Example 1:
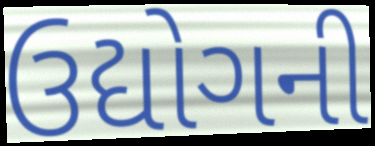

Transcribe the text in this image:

ઉદ્યોગની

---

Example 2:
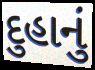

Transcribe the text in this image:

દુહાનું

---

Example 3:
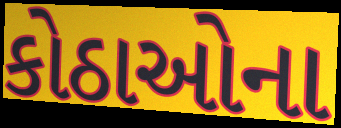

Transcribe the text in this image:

કોઠાઓના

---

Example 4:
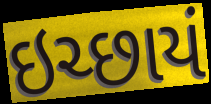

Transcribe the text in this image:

ઇચ્છાયં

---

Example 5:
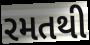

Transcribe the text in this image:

રમતથી